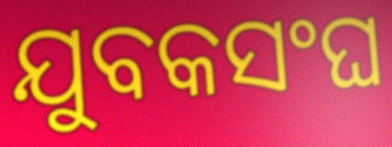
ଯୁବକସଂଘ